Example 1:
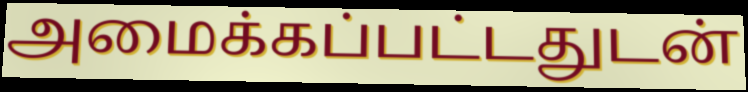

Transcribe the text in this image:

அமைக்கப்பட்டதுடன்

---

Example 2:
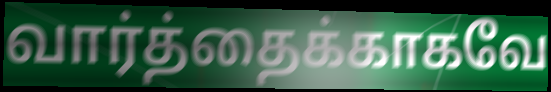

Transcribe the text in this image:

வார்த்தைக்காகவே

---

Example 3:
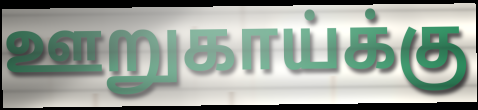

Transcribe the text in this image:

ஊறுகாய்க்கு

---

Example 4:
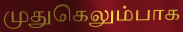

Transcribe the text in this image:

முதுகெலும்பாக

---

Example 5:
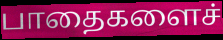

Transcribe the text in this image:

பாதைகளைச்